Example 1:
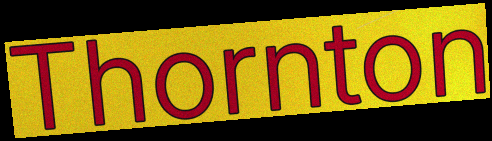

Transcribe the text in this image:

Thornton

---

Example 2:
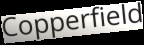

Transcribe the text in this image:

Copperfield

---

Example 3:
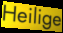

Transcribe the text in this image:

Heilige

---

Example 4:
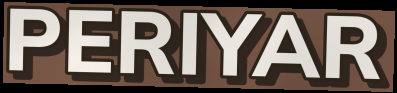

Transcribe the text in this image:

PERIYAR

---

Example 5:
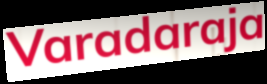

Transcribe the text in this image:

Varadaraja